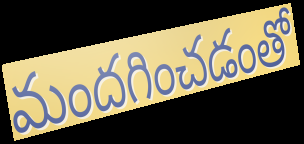
మందగించడంతో